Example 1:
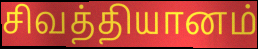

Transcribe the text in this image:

சிவத்தியானம்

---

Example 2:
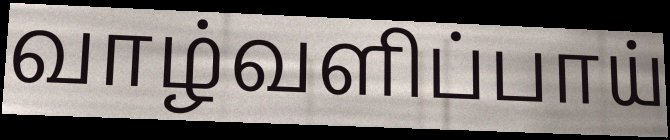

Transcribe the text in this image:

வாழ்வளிப்பாய்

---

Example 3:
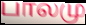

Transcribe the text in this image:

பாலமு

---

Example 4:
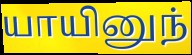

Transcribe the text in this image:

யாயினுந்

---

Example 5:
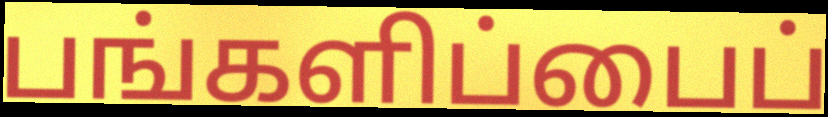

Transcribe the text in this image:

பங்களிப்பைப்